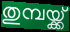
തുമ്പയ്ക്ക്